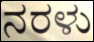
ನರಳು